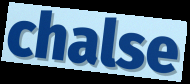
chalse